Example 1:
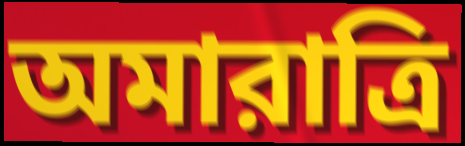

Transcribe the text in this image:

অমারাত্রি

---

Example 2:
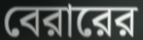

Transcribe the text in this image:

বেরারের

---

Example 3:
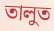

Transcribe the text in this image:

তালুত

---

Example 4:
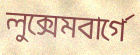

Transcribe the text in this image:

লুক্সেমবার্গে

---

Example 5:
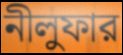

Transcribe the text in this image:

নীলুফার